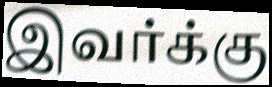
இவர்க்கு